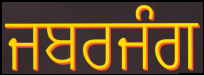
ਜਬਰਜੰਗ